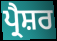
ਪ੍ਰੈਸ਼ਰ